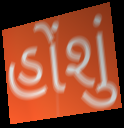
હોંશું